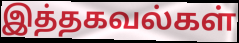
இத்தகவல்கள்